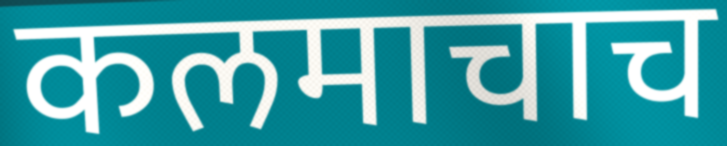
कलमाचाच